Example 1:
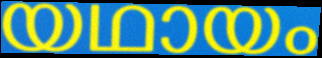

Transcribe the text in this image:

യഥായം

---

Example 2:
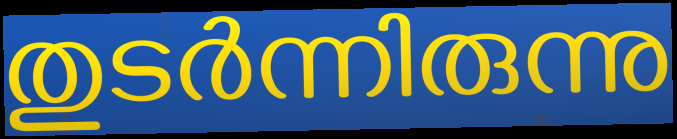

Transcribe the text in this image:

തുടർന്നിരുന്നു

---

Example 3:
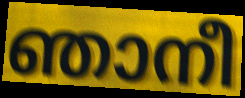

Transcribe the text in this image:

ഞാനീ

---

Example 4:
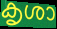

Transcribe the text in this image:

കൃശാ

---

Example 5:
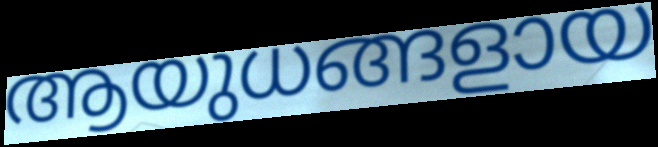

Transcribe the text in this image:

ആയുധങ്ങളായ